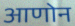
आणोन